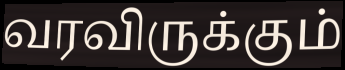
வரவிருக்கும்